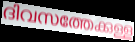
ദിവസത്തേക്കുള്ള